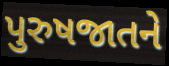
પુરુષજાતને